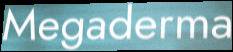
Megaderma